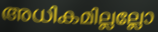
അധികമില്ലല്ലോ